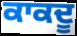
ਕਾਕਦੂ